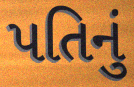
પતિનું